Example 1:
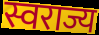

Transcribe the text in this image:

स्वराज्य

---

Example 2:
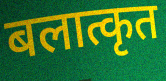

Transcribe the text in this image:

बलात्कृत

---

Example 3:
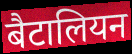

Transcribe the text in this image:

बैटालियन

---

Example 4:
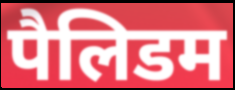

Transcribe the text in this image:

पैलिडम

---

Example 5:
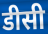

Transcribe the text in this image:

डीसी